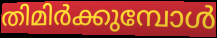
തിമിർക്കുമ്പോൾ